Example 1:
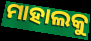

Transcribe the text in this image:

ମାହାଲକୁ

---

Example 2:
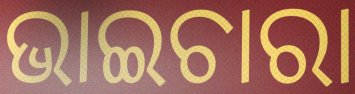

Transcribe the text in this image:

ଭାଇଚାରା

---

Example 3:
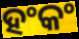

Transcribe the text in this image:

ହଂକଂ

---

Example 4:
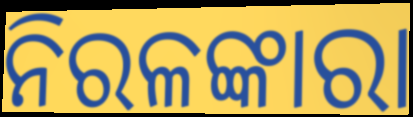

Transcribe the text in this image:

ନିରଳଙ୍କାରା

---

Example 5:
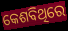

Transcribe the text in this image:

କେଶବିଥିରେ